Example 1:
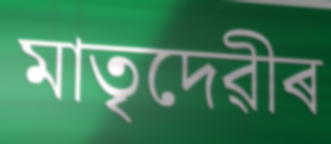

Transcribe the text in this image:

মাতৃদেৱীৰ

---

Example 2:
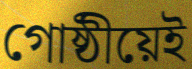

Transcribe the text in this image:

গোষ্ঠীয়েই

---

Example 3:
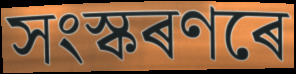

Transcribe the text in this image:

সংস্কৰণৰে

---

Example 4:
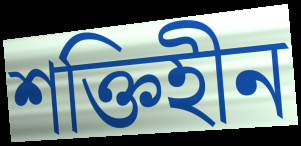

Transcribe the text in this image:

শক্তিহীন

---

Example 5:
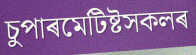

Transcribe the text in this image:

চুপাৰমেটিষ্টসকলৰ